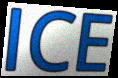
ICE